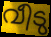
വീടു